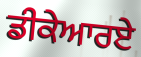
ਡੀਕੇਆਰਏ